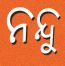
ନନ୍ଦୁ